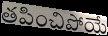
తపించిపోయే